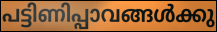
പട്ടിണിപ്പാവങ്ങൾക്കു